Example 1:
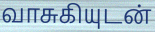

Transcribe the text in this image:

வாசுகியுடன்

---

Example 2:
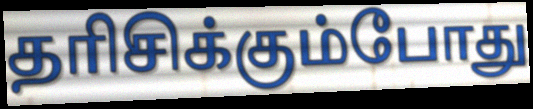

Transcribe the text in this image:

தரிசிக்கும்போது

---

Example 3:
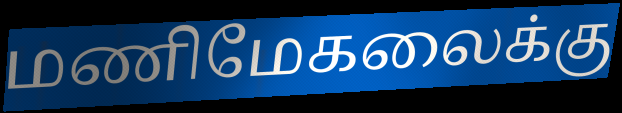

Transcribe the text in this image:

மணிமேகலைக்கு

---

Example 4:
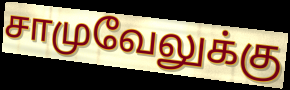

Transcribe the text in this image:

சாமுவேலுக்கு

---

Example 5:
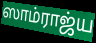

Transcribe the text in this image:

ஸாம்ராஜ்ய